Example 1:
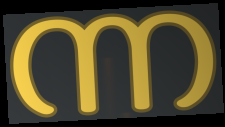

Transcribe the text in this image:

ന്ന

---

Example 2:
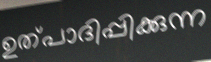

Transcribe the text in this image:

ഉത്പാദിപ്പിക്കുന്ന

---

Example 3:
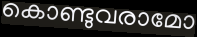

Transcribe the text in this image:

കൊണ്ടുവരാമോ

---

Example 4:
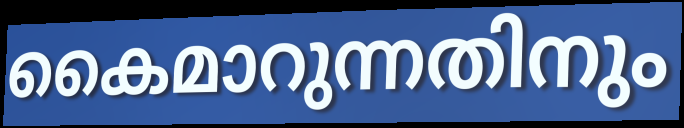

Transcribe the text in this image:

കൈമാറുന്നതിനും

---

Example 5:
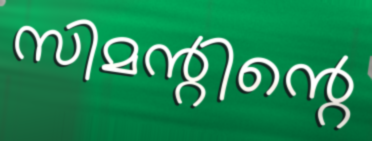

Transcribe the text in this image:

സിമന്റിന്റെ